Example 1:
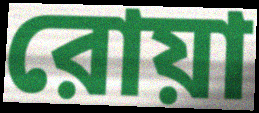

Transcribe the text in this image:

রোয়া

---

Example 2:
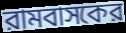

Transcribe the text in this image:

রামবাসকের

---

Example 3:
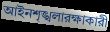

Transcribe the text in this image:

আইনশৃঙ্খলারক্ষাকারী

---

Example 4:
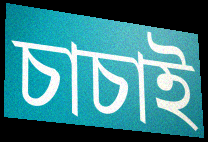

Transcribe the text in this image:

চাচাই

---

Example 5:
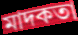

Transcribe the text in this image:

মাদকতা